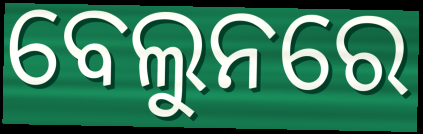
ବେଲୁନରେ